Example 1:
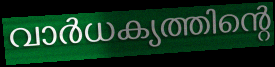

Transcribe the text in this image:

വാർധക്യത്തിന്റെ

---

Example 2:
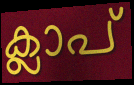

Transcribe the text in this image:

ക്ലാപ്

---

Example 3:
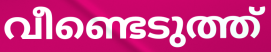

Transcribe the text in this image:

വീണ്ടെടുത്ത്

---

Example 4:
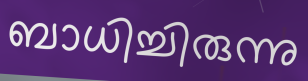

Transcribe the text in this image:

ബാധിച്ചിരുന്നു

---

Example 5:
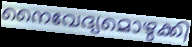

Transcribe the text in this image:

നൈവേദ്യമൊഴുക്കി